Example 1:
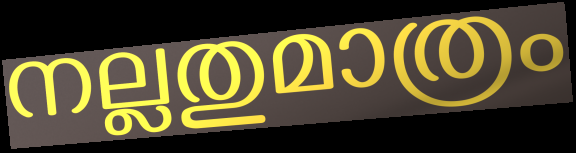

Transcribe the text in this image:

നല്ലതുമാത്രം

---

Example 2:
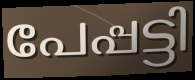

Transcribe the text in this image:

പേപ്പട്ടി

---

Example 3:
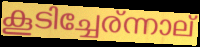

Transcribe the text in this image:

കൂടിച്ചേര്ന്നാല്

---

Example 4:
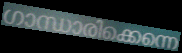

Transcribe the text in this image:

ഗാന്ധാരിക്കെന്നെ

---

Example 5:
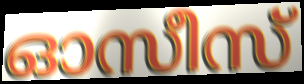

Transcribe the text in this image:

ഓസീസ്